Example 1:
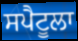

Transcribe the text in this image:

ਸਪੈਟੂਲਾ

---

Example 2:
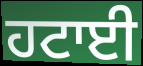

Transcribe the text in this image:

ਹਟਾਈ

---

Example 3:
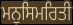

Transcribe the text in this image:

ਮਨੁਸਿਮਰਿਤੀ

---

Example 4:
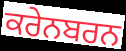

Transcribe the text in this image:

ਕਰੇਨਬਰਨ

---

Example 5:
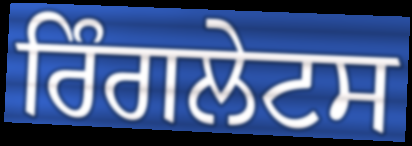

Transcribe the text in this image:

ਰਿੰਗਲੇਟਸ